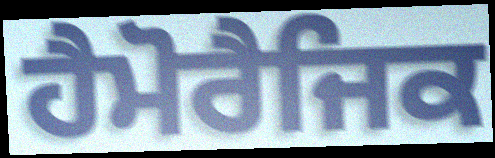
ਹੈਮੋਰੈਜਿਕ